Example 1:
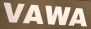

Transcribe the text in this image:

VAWA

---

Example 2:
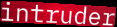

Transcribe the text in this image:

intruder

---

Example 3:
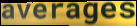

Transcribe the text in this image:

averages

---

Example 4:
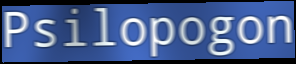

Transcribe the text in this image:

Psilopogon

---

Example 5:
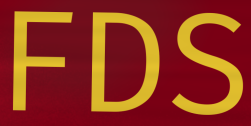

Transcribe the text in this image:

FDS